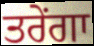
ਤਰੇਂਗਾ